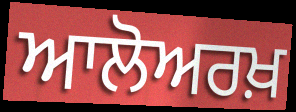
ਆਲੋਅਰਖ਼